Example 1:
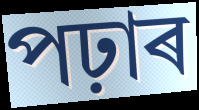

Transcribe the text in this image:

পঢ়াৰ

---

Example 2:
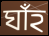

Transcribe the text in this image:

ঘাঁহ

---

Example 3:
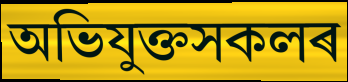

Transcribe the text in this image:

অভিযুক্তসকলৰ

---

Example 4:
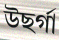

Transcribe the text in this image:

উছৰ্গা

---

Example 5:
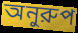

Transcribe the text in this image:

অনুৰুপ